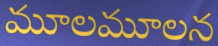
మూలమూలన